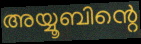
അയ്യൂബിന്റെ